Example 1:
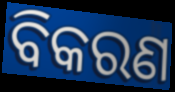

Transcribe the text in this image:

ବିକରଣ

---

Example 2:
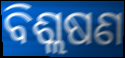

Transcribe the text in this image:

ବିଶ୍ଲଷଣ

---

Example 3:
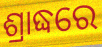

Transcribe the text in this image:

ଶ୍ରାଦ୍ଧରେ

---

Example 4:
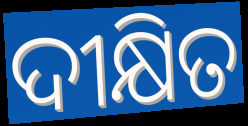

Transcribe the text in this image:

ଦୀକ୍ଷିତ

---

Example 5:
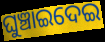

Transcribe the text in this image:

ଘୁଞ୍ଚାଇଦେଇ